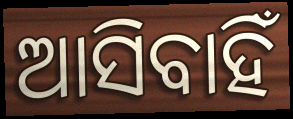
ଆସିବାହିଁ